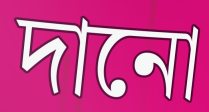
দানো